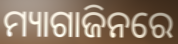
ମ୍ୟାଗାଜିନରେ